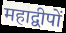
महाद्वीपों